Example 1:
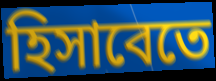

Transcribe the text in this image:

হিসাবেতে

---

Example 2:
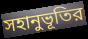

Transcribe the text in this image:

সহানুভূতির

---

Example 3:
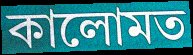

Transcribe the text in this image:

কালোমত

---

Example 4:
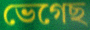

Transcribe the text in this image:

ভেগেছ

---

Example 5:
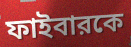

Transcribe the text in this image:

ফাইবারকে